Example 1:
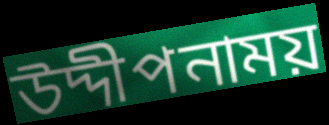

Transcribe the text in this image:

উদ্দীপনাময়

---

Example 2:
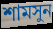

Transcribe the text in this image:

শামসুন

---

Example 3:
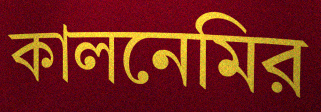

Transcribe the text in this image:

কালনেমির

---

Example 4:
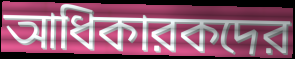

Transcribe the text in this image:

আধিকারকদের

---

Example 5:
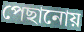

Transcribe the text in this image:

পেছানোয়